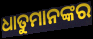
ଧାତୁମାନଙ୍କର